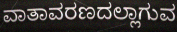
ವಾತಾವರಣದಲ್ಲಾಗುವ